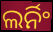
ଲର୍ନିଂ